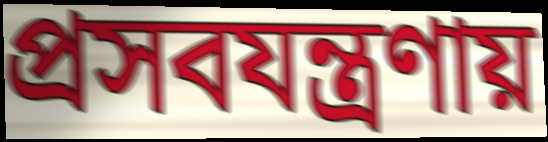
প্রসবযন্ত্রণায়